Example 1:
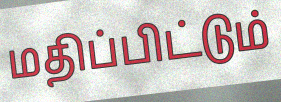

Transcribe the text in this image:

மதிப்பிட்டும்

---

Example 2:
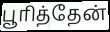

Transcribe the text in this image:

பூரித்தேன்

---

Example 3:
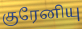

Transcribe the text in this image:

குரேனியு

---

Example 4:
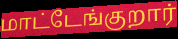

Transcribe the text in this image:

மாட்டேங்குறார்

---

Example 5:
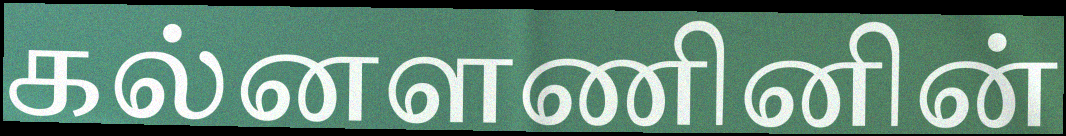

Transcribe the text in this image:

கல்னளணினின்